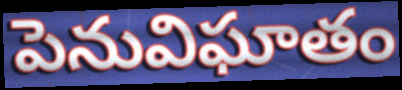
పెనువిఘాతం